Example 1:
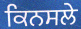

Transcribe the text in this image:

ਕਿਨਸਲੇ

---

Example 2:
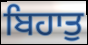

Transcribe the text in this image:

ਬਿਹਾਤੁ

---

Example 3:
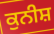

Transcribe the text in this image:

ਕੁਨੀਸ਼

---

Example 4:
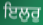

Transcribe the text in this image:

ਇਲੁਰੁ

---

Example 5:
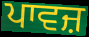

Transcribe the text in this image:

ਪਾਵਜ਼